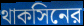
থাকসিনের